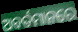
ଅବର୍ତମାନରେ